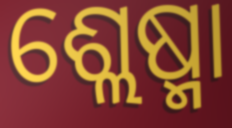
ଶ୍ଲେଷ୍ମା